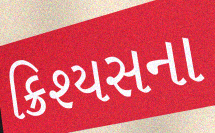
ક્રિશ્યસના